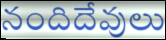
నందిదేవులు